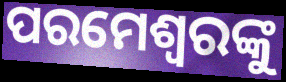
ପରମେଶ୍ୱରଙ୍କୁ